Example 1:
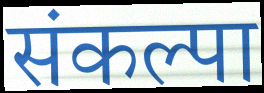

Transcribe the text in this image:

संकल्पा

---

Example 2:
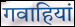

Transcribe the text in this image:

गवाहियां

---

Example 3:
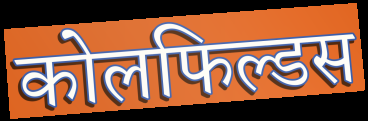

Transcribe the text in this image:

कोलफिल्डस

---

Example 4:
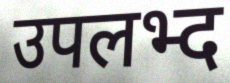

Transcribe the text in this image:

उपलभ्द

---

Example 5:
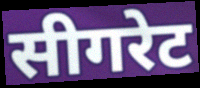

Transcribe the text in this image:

सीगरेट